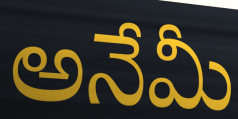
అనేమీ